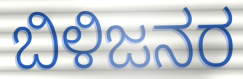
ಬಿಳಿಜನರ